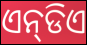
ଏନ୍‌ଡିଏ